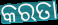
କରତା